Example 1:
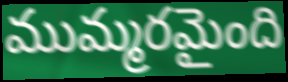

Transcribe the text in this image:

ముమ్మరమైంది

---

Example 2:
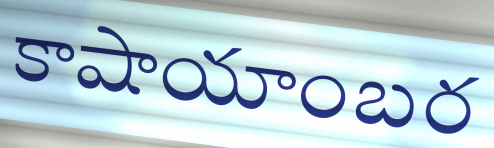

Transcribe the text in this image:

కాషాయాంబర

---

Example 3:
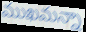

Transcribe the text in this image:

ముఖమన్నా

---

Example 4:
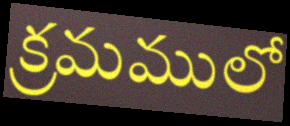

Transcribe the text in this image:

క్రమములో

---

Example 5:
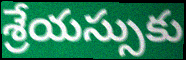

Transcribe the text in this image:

శ్రేయస్సుకు